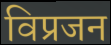
विप्रजन